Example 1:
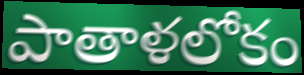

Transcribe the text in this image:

పాతాళలోకం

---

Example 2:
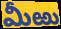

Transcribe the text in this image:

మీఱు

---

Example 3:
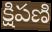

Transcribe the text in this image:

క్షిపణి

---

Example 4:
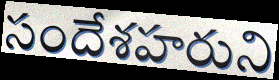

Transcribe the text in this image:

సందేశహరుని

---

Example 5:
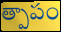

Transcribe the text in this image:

త్పాపం